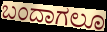
ಬಂದಾಗಲೂ